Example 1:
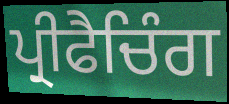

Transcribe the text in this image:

ਪ੍ਰੀਫੈਚਿੰਗ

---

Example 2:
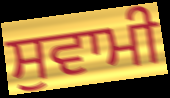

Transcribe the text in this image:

ਸੁਵਾਮੀ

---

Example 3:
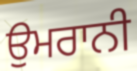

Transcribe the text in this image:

ਉਮਰਾਨੀ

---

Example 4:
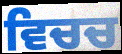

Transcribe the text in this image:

ਵਿਚਚ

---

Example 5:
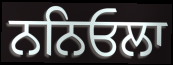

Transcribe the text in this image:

ਨਨਿਓਲਾ